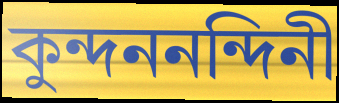
কুন্দননন্দিনী